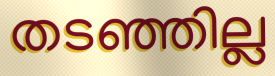
തടഞ്ഞില്ല